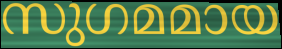
സുഗമമായ